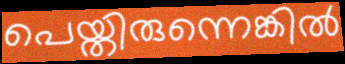
പെയ്തിരുന്നെങ്കിൽ